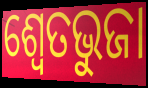
ଶ୍ଵେତଭୁଜା